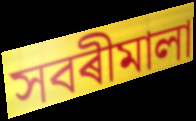
সবৰীমালা